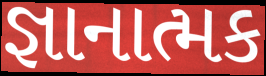
જ્ઞાનાત્મક